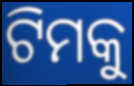
ଟିମକୁ